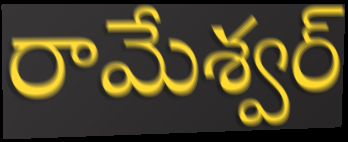
రామేశ్వర్